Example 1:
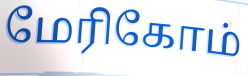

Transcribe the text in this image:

மேரிகோம்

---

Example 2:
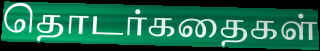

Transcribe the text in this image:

தொடர்கதைகள்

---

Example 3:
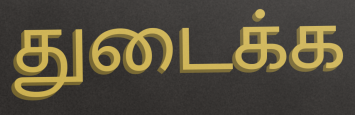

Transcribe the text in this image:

துடைக்க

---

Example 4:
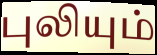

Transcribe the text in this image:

புலியும்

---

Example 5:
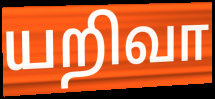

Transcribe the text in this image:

யறிவா